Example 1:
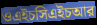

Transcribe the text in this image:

ওএইচসিএইচআর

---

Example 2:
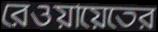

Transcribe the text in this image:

রেওয়ায়েতের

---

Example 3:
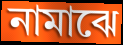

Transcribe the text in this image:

নামাঝে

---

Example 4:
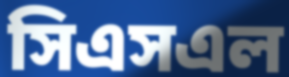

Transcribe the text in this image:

সিএসএল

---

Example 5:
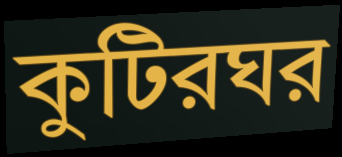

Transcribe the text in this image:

কুটিরঘর